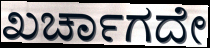
ಖರ್ಚಾಗದೇ